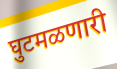
घुटमळणारी